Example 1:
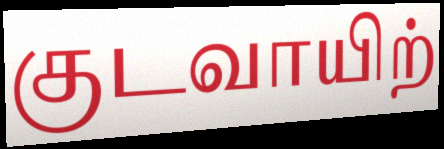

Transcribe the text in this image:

குடவாயிற்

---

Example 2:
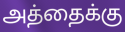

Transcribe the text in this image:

அத்தைக்கு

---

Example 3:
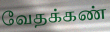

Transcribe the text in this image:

வேதக்கண்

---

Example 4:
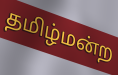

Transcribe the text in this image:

தமிழ்மன்ற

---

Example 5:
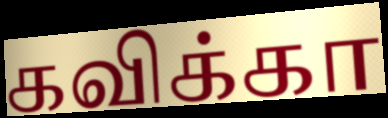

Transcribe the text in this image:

கவிக்கா